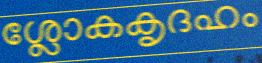
ശ്ലോകകൃദഹം